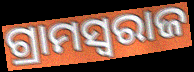
ଗ୍ରାମସ୍ବରାଜ